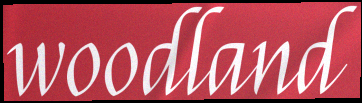
woodland